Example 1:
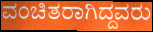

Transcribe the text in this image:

ವಂಚಿತರಾಗಿದ್ದವರು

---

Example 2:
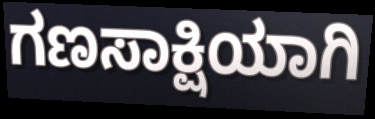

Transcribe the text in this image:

ಗಣಸಾಕ್ಷಿಯಾಗಿ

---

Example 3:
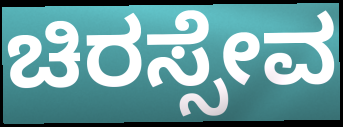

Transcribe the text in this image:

ಚಿರಸ್ಸೇವ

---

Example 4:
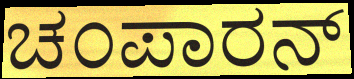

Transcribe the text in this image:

ಚಂಪಾರನ್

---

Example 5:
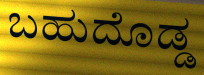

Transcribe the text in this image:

ಬಹುದೊಡ್ಡ